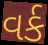
વર્ક